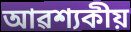
আৱশ্যকীয়